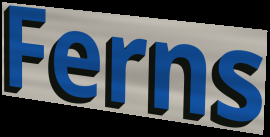
Ferns